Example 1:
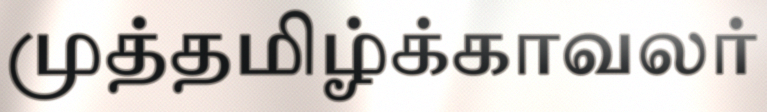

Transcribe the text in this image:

முத்தமிழ்க்காவலர்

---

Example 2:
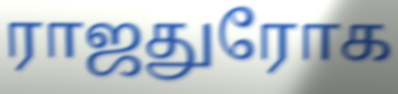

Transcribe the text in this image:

ராஜதுரோக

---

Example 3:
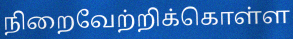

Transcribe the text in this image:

நிறைவேற்றிக்கொள்ள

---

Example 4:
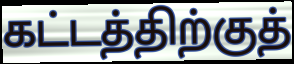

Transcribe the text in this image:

கட்டத்திற்குத்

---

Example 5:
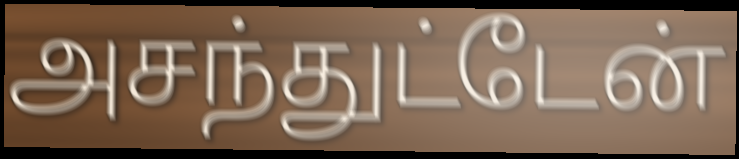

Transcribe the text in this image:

அசந்துட்டேன்